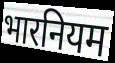
भारनियम